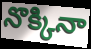
నొక్కినా